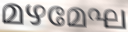
മഴമേഘ